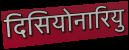
दिसियोनारियु